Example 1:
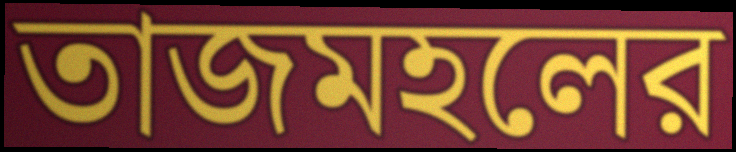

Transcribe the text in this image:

তাজমহলের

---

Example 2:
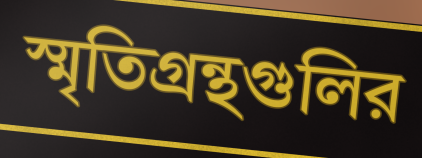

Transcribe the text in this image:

স্মৃতিগ্রন্থগুলির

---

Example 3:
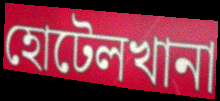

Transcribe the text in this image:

হোটেলখানা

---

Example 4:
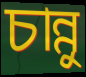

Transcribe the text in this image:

চান্নু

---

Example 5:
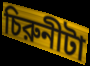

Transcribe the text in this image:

চিরুনীটা